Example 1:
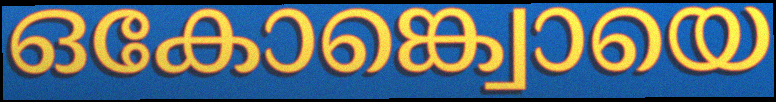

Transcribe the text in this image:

ഒകോങ്ക്വൊയെ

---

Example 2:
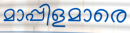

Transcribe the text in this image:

മാപ്പിളമാരെ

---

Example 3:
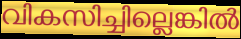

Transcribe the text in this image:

വികസിച്ചില്ലെങ്കിൽ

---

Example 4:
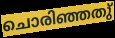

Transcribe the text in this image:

ചൊരിഞ്ഞതു്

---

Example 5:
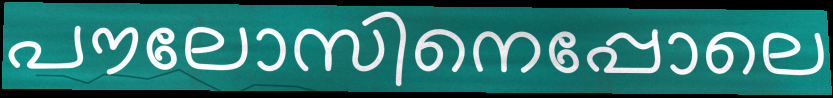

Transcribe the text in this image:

പൗലോസിനെപ്പോലെ